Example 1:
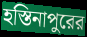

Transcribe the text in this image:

হস্তিনাপুরের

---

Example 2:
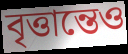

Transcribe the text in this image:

বৃত্তান্তেও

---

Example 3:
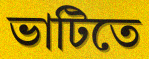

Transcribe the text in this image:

ভাটিতে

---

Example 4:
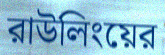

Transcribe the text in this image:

রাউলিংয়ের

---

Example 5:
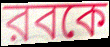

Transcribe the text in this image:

রবকে